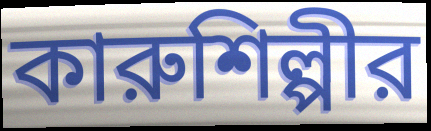
কারুশিল্পীর